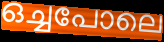
ഒച്ചപോലെ